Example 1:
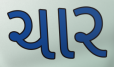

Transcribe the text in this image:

ચાર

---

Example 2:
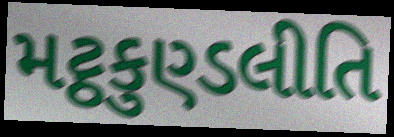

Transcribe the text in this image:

મટ્ઠકુણ્ડલીતિ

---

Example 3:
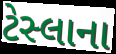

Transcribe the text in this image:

ટેસ્લાના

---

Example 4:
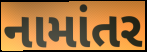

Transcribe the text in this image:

નામાંતર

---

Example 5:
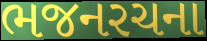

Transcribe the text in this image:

ભજનરચના